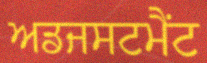
ਅਡਜਸਟਮੈਂਟ